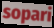
sopari